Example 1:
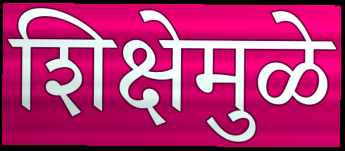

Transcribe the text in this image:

शिक्षेमुळे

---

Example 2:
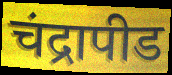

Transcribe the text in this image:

चंद्रापीड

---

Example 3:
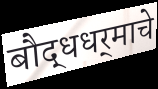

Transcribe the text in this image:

बौद्धधर्माचे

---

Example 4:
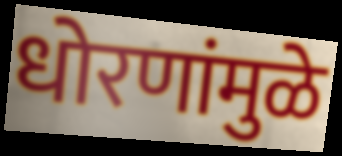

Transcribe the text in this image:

धोरणांमुळे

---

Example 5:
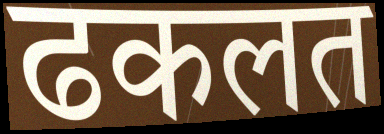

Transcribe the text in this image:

ढकलत